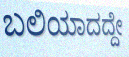
ಬಲಿಯಾದದ್ದೇ